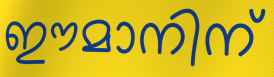
ഈമാനിന്